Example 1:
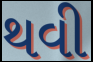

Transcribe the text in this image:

થવી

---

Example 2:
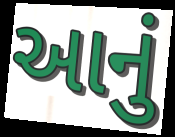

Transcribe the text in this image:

આનું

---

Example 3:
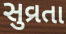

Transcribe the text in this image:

સુવ્રતા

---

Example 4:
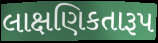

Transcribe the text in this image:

લાક્ષણિકતારૂપ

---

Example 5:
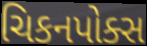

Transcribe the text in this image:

ચિકનપોક્સ